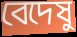
বেদেষু